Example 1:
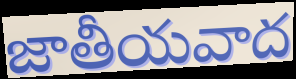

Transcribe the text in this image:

జాతీయవాద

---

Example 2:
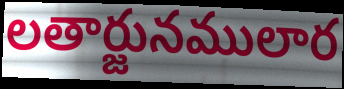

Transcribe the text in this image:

లతార్జునములార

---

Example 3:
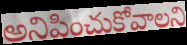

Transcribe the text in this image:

అనిపించుకోవాలని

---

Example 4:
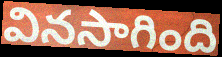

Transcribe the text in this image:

వినసాగింది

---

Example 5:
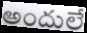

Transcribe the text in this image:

అందులే